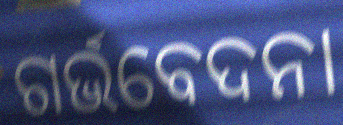
ଗର୍ଭବେଦନା